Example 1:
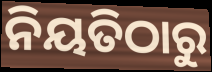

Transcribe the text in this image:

ନିୟତିଠାରୁ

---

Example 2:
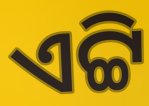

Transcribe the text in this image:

ଏଟ୍ଟି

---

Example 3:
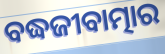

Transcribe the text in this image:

ବଦ୍ଧଜୀବାତ୍ମାର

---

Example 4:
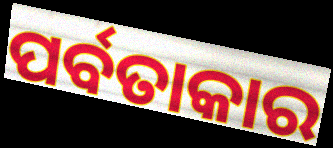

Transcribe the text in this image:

ପର୍ବତାକାର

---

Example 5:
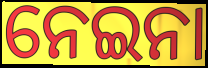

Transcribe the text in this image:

ନେଇନା